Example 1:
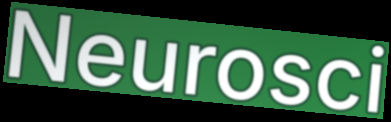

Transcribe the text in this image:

Neurosci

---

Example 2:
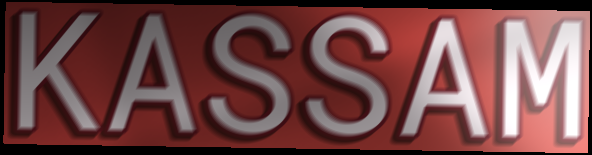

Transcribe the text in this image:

KASSAM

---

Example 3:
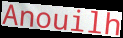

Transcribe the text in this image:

Anouilh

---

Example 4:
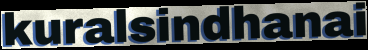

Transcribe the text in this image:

kuralsindhanai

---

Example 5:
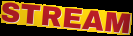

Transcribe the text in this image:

STREAM